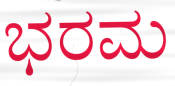
ಭರಮ